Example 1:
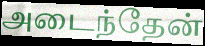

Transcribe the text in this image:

அடைந்தேன்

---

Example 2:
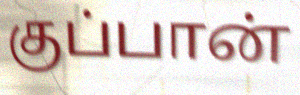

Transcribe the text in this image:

குப்பான்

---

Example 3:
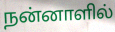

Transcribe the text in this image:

நன்னாளில்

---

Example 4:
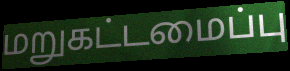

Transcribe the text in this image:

மறுகட்டமைப்பு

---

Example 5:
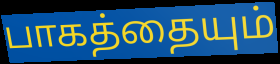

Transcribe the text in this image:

பாகத்தையும்